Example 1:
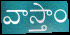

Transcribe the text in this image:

వాస్తాం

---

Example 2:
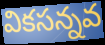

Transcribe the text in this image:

వికసన్నవ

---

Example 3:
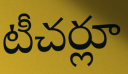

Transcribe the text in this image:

టీచర్లూ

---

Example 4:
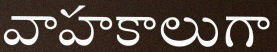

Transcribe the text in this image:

వాహకాలుగా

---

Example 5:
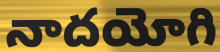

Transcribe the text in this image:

నాదయోగి